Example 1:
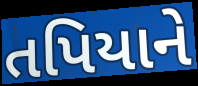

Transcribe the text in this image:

તપિયાને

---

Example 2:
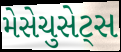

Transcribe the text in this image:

મેસેચુસેટ્સ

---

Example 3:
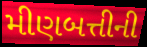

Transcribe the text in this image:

મીણબત્તીની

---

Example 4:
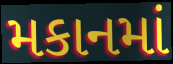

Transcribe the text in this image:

મકાનમાં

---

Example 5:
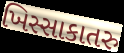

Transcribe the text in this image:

ખિસ્સાકાતરુ